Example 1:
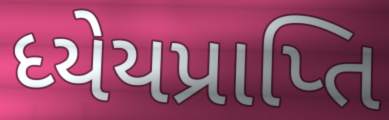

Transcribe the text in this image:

ધ્યેયપ્રાપ્તિ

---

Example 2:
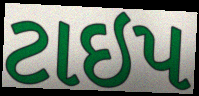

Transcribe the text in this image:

ટાઇપ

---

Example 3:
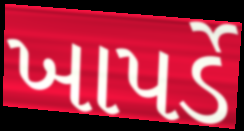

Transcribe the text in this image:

ખાપર્ડે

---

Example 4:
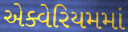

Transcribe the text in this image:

એક્વેરિયમમાં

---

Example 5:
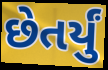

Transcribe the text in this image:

છેતર્યું